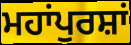
ਮਹਾਂਪੁਰਸ਼ਾਂ